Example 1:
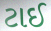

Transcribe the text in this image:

ટાઈ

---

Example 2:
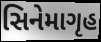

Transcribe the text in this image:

સિનેમાગૃહ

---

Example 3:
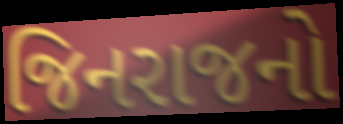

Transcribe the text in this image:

જિનરાજનો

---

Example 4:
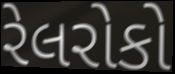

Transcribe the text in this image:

રેલરોકો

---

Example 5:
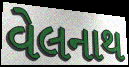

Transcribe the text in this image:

વેલનાથ